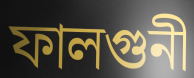
ফালগুনী